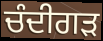
ਚੰਦੀਗੜ